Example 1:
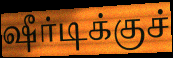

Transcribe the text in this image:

ஷீர்டிக்குச்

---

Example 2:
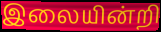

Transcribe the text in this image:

இலையின்றி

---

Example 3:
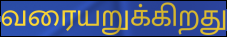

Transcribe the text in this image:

வரையறுக்கிறது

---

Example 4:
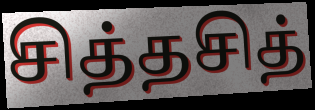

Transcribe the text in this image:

சித்தசித்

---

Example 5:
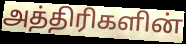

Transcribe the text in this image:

அத்திரிகளின்